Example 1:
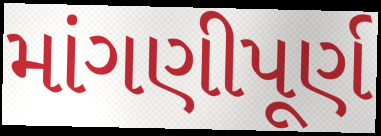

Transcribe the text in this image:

માંગણીપૂર્ણ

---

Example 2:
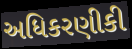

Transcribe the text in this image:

અધિકરણીકી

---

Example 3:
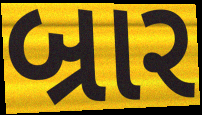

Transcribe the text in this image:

બ્રાર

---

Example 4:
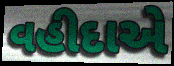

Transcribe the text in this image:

વહીદાએ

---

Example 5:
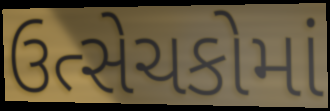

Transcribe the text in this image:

ઉત્સેચકોમાં